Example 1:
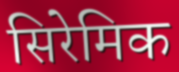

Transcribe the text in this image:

सिरेमिक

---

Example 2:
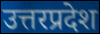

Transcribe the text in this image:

उत्तरप्रदेश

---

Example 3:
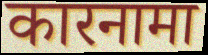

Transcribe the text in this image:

कारनामा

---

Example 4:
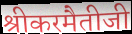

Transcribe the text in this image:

श्रीकरमैतीजी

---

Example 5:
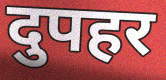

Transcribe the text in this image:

दुपहर